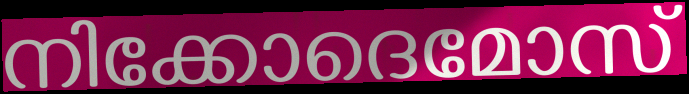
നിക്കോദെമോസ്